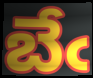
బేఁ